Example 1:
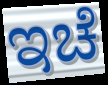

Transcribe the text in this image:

ಇಚೆ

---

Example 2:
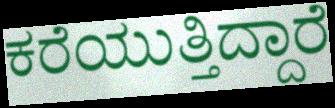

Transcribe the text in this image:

ಕರೆಯುತ್ತಿದ್ದಾರೆ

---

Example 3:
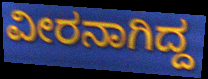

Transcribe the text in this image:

ವೀರನಾಗಿದ್ದ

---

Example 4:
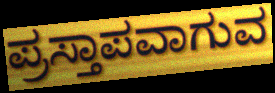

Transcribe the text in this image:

ಪ್ರಸ್ತಾಪವಾಗುವ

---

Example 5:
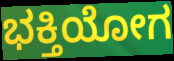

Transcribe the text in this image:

ಭಕ್ತಿಯೋಗ